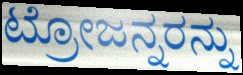
ಟ್ರೋಜನ್ನರನ್ನು